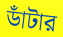
ডাঁটার